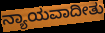
ನ್ಯಾಯವಾದೀತು